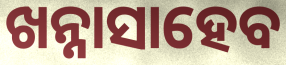
ଖନ୍ନାସାହେବ